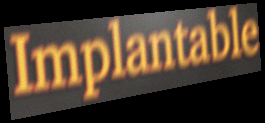
Implantable